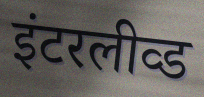
इंटरलीव्ड